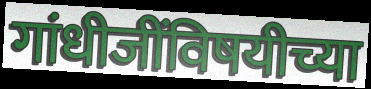
गांधीजींविषयीच्या